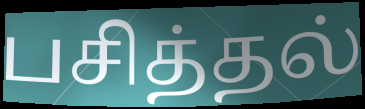
பசித்தல்